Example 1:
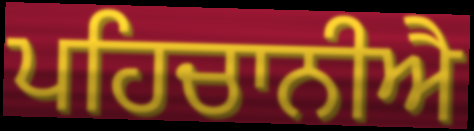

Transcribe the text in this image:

ਪਹਿਚਾਨੀਐ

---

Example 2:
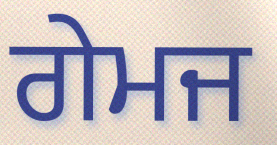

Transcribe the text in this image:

ਗੇਮਜ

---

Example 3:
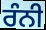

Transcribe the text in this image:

ਰੰਨੀ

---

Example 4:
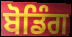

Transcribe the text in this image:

ਬੋਡਿੰਗ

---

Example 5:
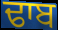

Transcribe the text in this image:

ਢਾਬ